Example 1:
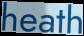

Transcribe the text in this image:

heath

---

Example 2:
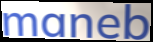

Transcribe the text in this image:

maneb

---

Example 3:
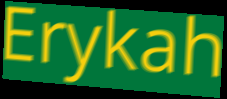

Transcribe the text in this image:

Erykah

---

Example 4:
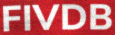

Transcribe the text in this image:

FIVDB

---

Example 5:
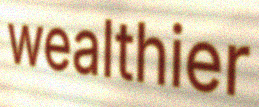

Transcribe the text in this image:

wealthier